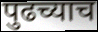
पुढच्याच